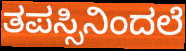
ತಪಸ್ಸಿನಿಂದಲೆ